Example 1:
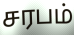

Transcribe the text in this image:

சரபம்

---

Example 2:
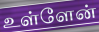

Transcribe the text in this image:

உள்ளேன்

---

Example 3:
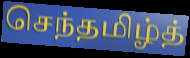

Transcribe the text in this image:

செந்தமிழ்த்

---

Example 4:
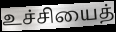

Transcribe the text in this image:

உச்சியைத்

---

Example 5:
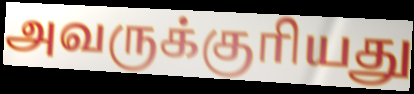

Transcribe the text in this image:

அவருக்குரியது